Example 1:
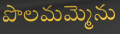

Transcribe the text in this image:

పొలమమ్మెను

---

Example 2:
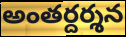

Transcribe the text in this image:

అంతర్దర్శన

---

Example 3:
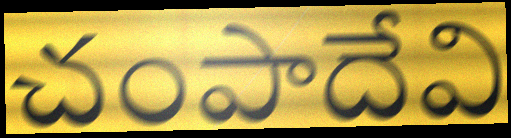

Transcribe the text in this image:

చంపాదేవి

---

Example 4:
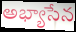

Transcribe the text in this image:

అభ్యాసేన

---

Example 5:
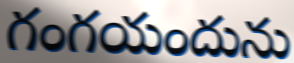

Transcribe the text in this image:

గంగయందును